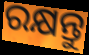
ରକ୍ଷନ୍ତୁ